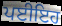
ਪਈਇਹ